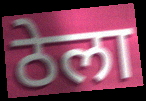
ठेला